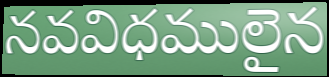
నవవిధములైన